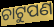
ଚାଟୁପଣ